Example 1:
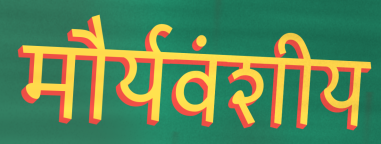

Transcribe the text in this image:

मौर्यवंशीय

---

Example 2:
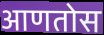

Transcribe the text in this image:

आणतोस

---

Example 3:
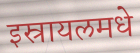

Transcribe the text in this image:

इस्रायलमधे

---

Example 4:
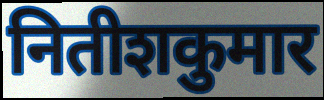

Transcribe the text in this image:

नितीशकुमार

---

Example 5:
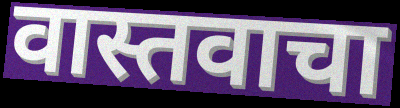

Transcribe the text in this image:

वास्तवाचा